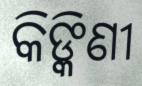
କିଙ୍କିଣୀ